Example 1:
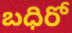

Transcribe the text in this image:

బధిరో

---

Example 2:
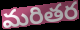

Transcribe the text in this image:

మరితర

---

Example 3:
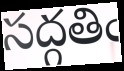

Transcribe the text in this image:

సద్గతిఁ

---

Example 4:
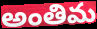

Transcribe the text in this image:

అంతిమ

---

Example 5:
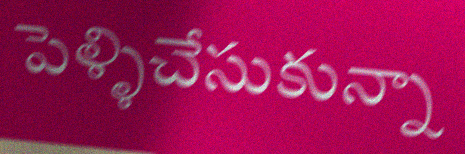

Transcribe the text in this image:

పెళ్ళిచేసుకున్నా